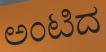
ಅಂಟಿದ